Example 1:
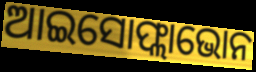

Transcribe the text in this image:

ଆଇସୋଫ୍ଲାଭୋନ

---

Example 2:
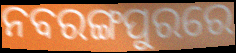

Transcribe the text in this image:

ନବରଙ୍ଗପୁରରେ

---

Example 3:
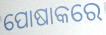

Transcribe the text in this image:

ପୋଷାକରେ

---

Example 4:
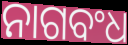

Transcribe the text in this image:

ନାଗବଂଧ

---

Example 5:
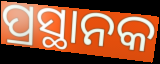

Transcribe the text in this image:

ପ୍ରସ୍ଥାନକ